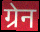
ग्रेन